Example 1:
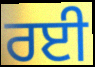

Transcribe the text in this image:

ਰਈ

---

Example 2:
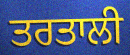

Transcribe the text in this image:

ਤਰਤਾਲੀ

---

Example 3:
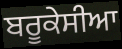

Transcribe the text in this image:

ਬਰੂਕੇਸੀਆ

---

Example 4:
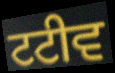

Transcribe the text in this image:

ਟਟੀਵ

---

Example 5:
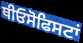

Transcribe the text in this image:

ਥੀਓਸੋਫਿਸਟਾਂ